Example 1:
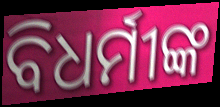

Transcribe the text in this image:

ବିଧର୍ମୀଙ୍କ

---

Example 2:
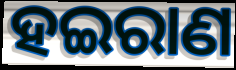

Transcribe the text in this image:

ହଇରାଣ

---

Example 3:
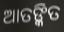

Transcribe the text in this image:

ଆତଙ୍କିତ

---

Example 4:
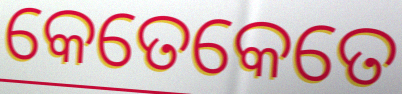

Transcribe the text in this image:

କେତେକେତେ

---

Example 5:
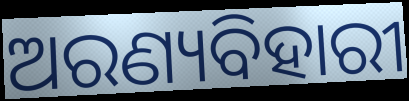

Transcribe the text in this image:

ଅରଣ୍ୟବିହାରୀ